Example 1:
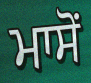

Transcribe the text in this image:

ਮਾਸੋਂ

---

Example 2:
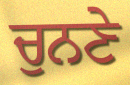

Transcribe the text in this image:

ਚੁਨਣੇ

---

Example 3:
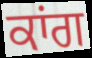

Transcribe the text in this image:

ਕਾਂਗ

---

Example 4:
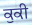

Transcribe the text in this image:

ਕੁਕੀ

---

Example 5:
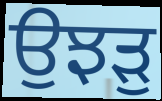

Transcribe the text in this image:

ਉਝੜੁ